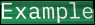
Example